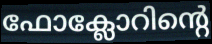
ഫോക്ലോറിന്റെ